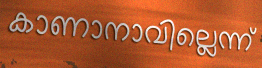
കാണാനാവില്ലെന്ന്